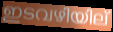
ഇടവഴിയില്